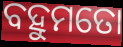
ବହୁମତୋ